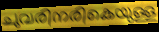
ചുവരിനരികെയുള്ള